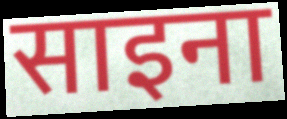
साइना